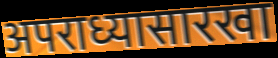
अपराध्यासारखा